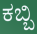
ಕಬ್ಬಿ